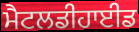
ਮੈਟਲਡੀਹਾਈਡ